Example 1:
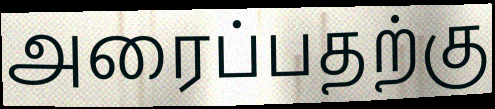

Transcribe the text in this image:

அரைப்பதற்கு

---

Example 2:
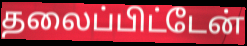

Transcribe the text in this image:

தலைப்பிட்டேன்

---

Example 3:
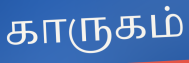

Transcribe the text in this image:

காருகம்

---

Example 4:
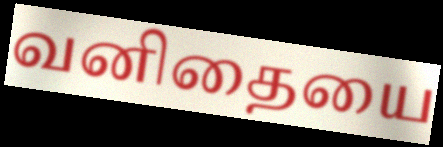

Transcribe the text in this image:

வனிதையை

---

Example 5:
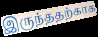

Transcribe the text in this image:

இருந்ததற்காக